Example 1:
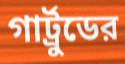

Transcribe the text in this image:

গার্ট্রুডের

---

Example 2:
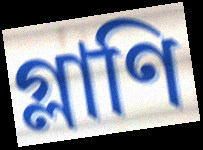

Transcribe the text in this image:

গ্লাণি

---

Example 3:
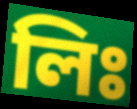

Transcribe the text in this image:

লিঃ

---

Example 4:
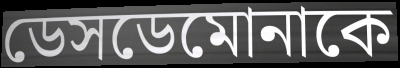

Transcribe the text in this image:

ডেসডেমোনাকে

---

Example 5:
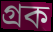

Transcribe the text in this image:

গ্রক